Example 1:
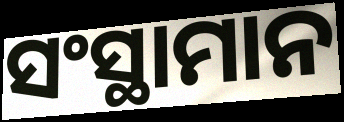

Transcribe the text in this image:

ସଂସ୍ଥାମାନ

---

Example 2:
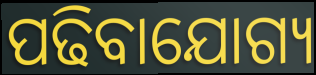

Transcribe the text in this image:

ପଢିବାଯୋଗ୍ୟ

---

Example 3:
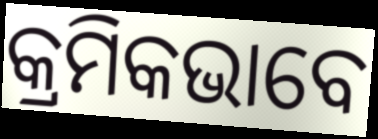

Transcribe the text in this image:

କ୍ରମିକଭାବେ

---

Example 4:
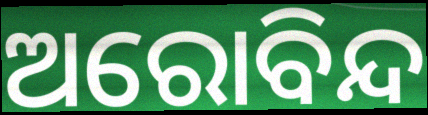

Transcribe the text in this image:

ଅରୋବିନ୍ଦ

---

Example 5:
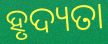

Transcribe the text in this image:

ହୃଦ୍ୟତା